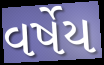
વર્ષેય